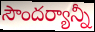
సౌందర్యాన్నీ